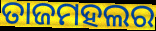
ତାଜମହଲର